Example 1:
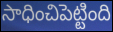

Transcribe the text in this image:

సాధించిపెట్టింది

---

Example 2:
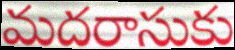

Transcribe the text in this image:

మదరాసుకు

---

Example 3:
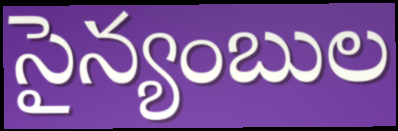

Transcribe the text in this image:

సైన్యంబుల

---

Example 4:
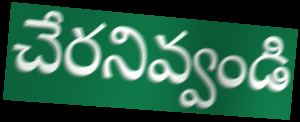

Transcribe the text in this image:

చేరనివ్వండి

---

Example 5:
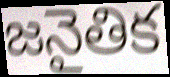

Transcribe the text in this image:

జనైతిక